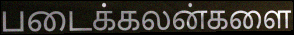
படைக்கலன்களை